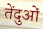
तेंदुओं